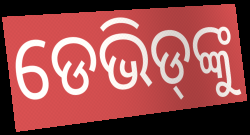
ଡେଭିଡ୍‌ଙ୍କୁ